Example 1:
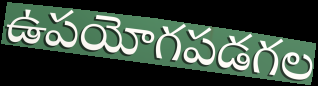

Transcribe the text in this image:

ఉపయోగపడగల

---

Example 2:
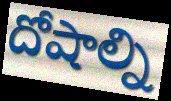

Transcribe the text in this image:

దోషాల్ని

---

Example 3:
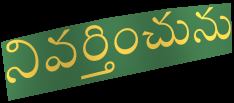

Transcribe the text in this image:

నివర్తించును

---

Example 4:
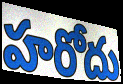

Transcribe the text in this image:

హరోదు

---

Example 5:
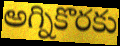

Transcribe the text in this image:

అగ్నికొరకు